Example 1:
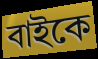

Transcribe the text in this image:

বাইকে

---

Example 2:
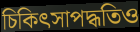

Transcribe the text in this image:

চিকিৎসাপদ্ধতিও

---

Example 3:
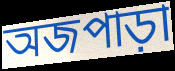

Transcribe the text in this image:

অজপাড়া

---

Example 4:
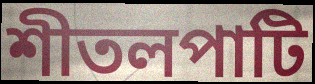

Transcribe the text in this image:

শীতলপাটি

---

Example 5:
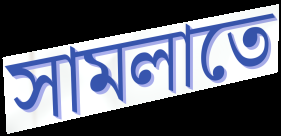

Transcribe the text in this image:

সামলাতে